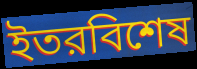
ইতরবিশেষ